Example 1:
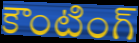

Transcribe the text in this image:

కౌంటింగ్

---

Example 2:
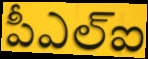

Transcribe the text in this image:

పీఎల్ఐ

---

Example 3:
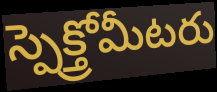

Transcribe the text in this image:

స్పెక్త్రోమీటరు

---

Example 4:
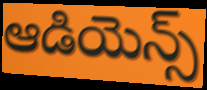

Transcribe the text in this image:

ఆడియెన్స్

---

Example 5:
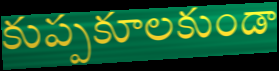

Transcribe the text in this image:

కుప్పకూలకుండా